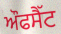
ਔਫਸੈੱਟ